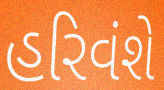
હરિવંશે